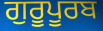
ਗੁਰੂਪੂਰਬ